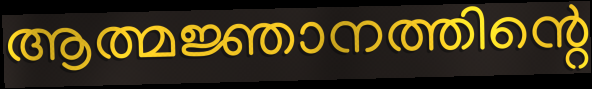
ആത്മജ്ഞാനത്തിന്റെ